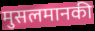
मुसलमानकी